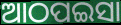
ଆଠପଇସା